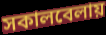
সকালবেলায়